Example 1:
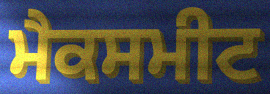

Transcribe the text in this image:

ਮੈਕਸਮੀਟ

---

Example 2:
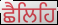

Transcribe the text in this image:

ਛੈਲਿਹਿ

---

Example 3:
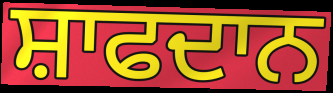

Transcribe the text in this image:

ਸ਼ਾਫਦਾਨ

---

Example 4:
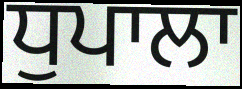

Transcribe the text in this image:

ਧੁਪਾਲਾ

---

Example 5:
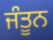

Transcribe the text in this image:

ਜੰਤੂਨ